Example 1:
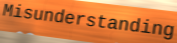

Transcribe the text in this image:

Misunderstanding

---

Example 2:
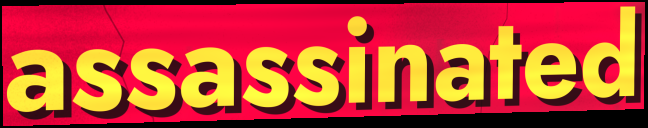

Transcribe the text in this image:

assassinated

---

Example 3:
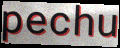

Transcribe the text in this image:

pechu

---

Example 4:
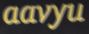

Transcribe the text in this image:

aavyu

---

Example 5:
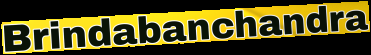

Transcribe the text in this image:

Brindabanchandra